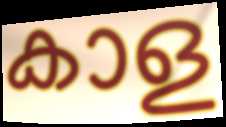
കാള